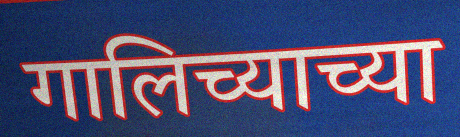
गालिच्याच्या